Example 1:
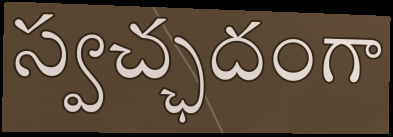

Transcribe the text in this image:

స్వచ్ఛదంగా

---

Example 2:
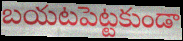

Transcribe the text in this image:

బయటపెట్టకుండా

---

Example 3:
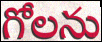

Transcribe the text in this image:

గోలను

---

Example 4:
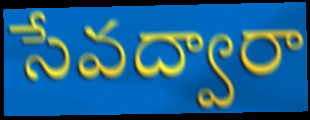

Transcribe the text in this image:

సేవద్వారా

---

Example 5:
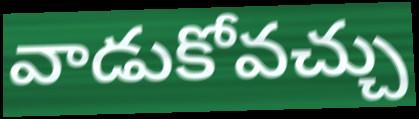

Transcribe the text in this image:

వాడుకోవచ్చు